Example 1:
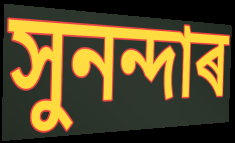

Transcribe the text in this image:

সুনন্দাৰ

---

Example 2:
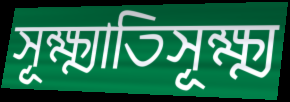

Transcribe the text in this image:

সূক্ষ্মাতিসূক্ষ্ম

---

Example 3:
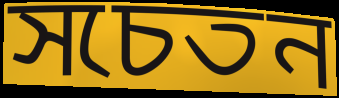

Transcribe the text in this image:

সচেতন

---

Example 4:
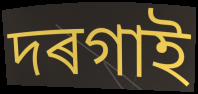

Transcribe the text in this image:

দৰগাই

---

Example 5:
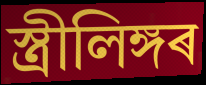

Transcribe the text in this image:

স্ত্ৰীলিঙ্গৰ